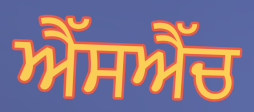
ਐੱਸਐੱਚ